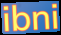
ibni